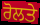
ਰੋਲਤੇ